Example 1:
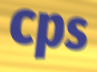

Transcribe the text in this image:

cps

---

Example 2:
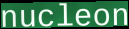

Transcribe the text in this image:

nucleon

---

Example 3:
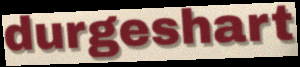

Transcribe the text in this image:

durgeshart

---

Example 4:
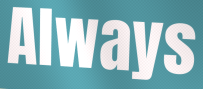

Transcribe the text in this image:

Always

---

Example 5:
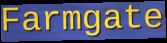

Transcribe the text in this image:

Farmgate